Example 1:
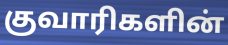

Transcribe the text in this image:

குவாரிகளின்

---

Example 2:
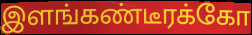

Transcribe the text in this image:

இளங்கண்டீரக்கோ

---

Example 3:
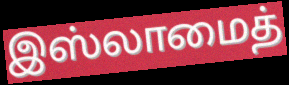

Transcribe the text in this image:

இஸ்லாமைத்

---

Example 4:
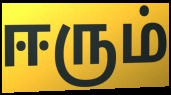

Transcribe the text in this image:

ஈரும்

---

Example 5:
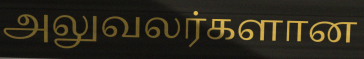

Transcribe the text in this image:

அலுவலர்களான